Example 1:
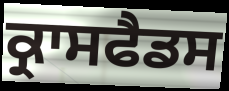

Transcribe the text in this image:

ਕ੍ਰਾਸਫੈਡਸ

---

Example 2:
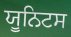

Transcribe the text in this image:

ਯੂਨਿਟਸ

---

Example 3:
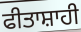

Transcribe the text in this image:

ਫੀਤਾਸ਼ਾਹੀ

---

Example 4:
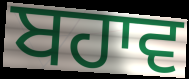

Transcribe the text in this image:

ਬਹਾਵ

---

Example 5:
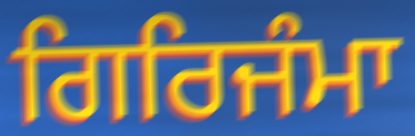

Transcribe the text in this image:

ਗਿਰਿਜੰਮਾ